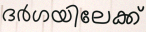
ദർഗയിലേക്ക്